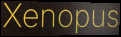
Xenopus